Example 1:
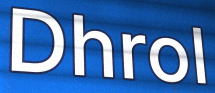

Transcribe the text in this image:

Dhrol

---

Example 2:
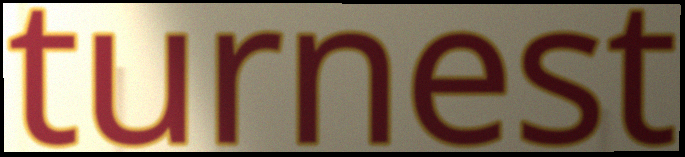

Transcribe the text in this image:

turnest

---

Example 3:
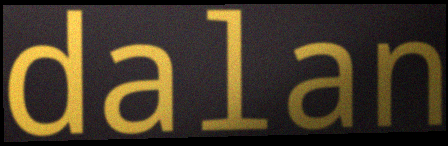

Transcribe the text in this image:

dalan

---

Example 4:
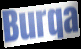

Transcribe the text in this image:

Burqa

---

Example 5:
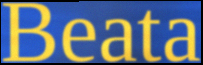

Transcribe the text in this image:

Beata